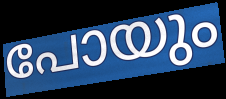
പോയും